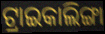
ଟ୍ରାଇକାଲିଙ୍ଗା